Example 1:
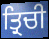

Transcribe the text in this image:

ਤ੍ਰਿਚੀ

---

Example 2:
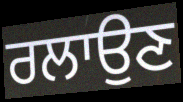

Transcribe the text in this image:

ਰਲਾਉਣ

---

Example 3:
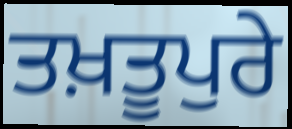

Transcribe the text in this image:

ਤਖ਼ਤੂਪੁਰੇ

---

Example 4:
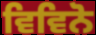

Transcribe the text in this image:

ਵਿਵਿਨੋ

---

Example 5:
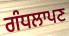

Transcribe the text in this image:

ਗੰਧਲਾਪਣ